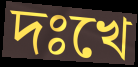
দঃখে